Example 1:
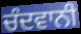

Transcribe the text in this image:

ਚੰਦਵਾਨੀ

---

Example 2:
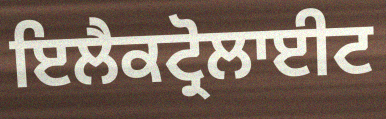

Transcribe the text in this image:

ਇਲੈਕਟ੍ਰੋਲਾਈਟ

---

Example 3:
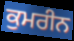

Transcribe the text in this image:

ਕੁਮਰੀਨ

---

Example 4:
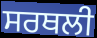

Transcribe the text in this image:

ਸਰਥਲੀ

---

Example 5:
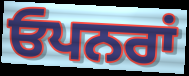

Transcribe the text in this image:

ਓਪਨਰਾਂ